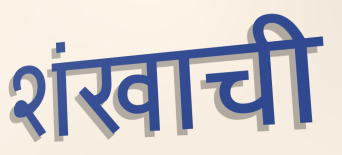
शंखाची